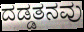
ದಡ್ಡತನವು